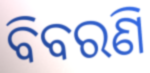
ବିବରଣି